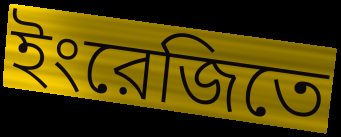
ইংরেজিতে